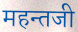
महन्तजी